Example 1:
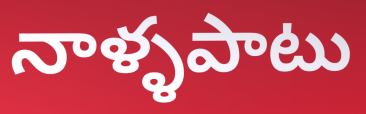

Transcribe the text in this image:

నాళ్ళపాటు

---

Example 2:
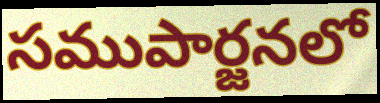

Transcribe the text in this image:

సముపార్జనలో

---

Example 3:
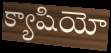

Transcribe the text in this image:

క్యాషియో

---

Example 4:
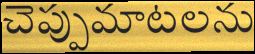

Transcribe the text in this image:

చెప్పుమాటలను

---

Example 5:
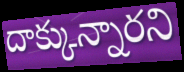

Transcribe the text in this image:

దాక్కున్నారని